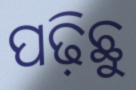
ପଢ଼ିଛୁ